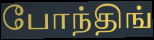
போந்திங்